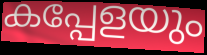
കപ്പേളയും